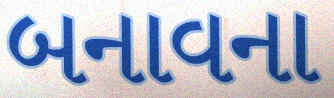
બનાવના